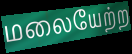
மலையேற்ற